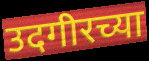
उदगीरच्या